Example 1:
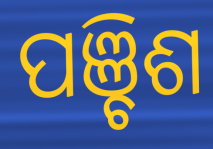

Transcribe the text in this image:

ପଞ୍ଚିଶ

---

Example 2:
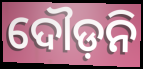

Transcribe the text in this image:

ଦୌଡ଼ନି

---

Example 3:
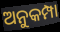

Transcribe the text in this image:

ଅନୁକମ୍ପା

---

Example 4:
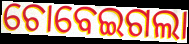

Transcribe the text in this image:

ଚୋବେଇଗଲା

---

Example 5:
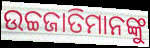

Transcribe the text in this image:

ଉଚ୍ଚଜାତିମାନଙ୍କୁ